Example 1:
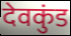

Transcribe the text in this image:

देवकुंड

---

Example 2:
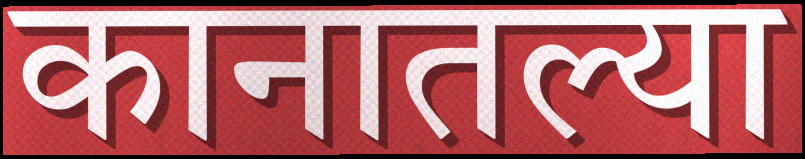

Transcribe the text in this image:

कानातल्या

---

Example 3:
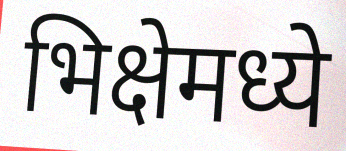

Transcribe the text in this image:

भिक्षेमध्ये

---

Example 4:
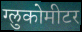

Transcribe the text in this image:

ग्लुकोमीटर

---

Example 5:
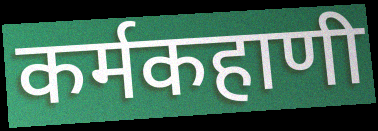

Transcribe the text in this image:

कर्मकहाणी